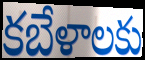
కబేళాలకు